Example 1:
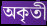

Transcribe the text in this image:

অকৃতী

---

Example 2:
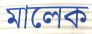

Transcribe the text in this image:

মালেক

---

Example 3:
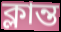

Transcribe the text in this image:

ক্লান্ত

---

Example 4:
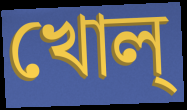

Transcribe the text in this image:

খোল্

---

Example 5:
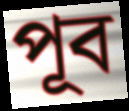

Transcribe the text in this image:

পূব